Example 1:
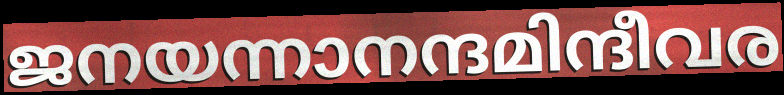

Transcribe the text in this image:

ജനയന്നാനന്ദമിന്ദീവര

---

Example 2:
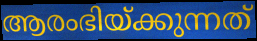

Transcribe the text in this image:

ആരംഭിയ്ക്കുന്നത്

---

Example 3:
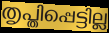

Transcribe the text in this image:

തൃപ്തിപ്പെട്ടില്ല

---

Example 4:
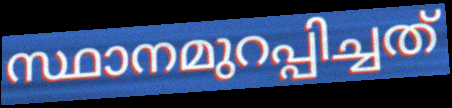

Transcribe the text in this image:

സ്ഥാനമുറപ്പിച്ചത്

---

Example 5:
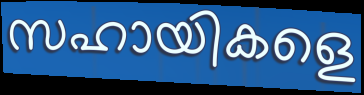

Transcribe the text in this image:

സഹായികളെ